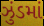
ઝુંડમાં